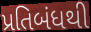
પ્રતિબંધથી